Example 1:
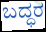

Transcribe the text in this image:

ಬದ್ಧರ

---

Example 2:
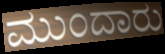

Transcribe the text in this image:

ಮುಂದಾರು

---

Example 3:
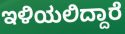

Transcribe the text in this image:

ಇಳಿಯಲಿದ್ದಾರೆ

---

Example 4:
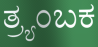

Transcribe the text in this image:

ತ್ರ್ಯಂಬಕ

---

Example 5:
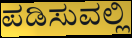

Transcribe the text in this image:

ಪಡಿಸುವಲ್ಲಿ